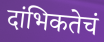
दांभिकतेचं